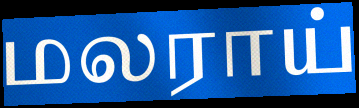
மலராய்